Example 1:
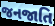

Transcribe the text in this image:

જનજાતિ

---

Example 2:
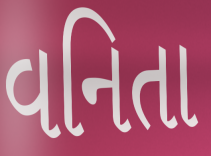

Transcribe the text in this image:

વનિતા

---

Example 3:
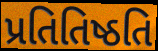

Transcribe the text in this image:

પ્રતિતિષ્ઠતિ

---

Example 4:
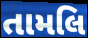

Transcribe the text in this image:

તામલિ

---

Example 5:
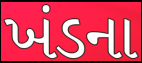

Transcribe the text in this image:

ખંડના